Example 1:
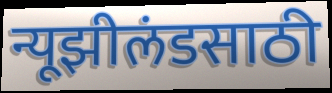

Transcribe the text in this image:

न्यूझीलंडसाठी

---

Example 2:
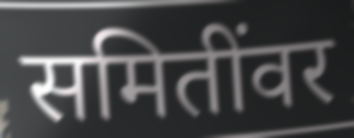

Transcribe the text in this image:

समितींवर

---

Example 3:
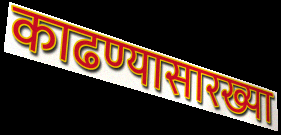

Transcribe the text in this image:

काढण्यासारख्या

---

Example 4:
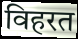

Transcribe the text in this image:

विहरत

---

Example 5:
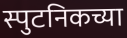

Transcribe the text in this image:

स्पुटनिकच्या